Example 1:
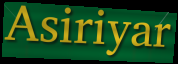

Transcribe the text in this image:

Asiriyar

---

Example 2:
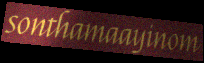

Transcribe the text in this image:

sonthamaayinom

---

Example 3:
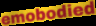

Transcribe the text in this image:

emobodied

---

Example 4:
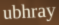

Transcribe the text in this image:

ubhray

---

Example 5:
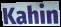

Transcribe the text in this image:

Kahin